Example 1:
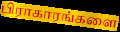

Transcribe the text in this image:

பிராகாரங்களை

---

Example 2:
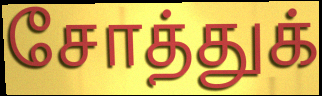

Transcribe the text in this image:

சோத்துக்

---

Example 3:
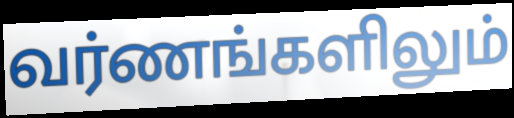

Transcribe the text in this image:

வர்ணங்களிலும்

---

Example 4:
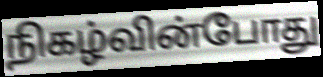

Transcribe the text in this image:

நிகழ்வின்போது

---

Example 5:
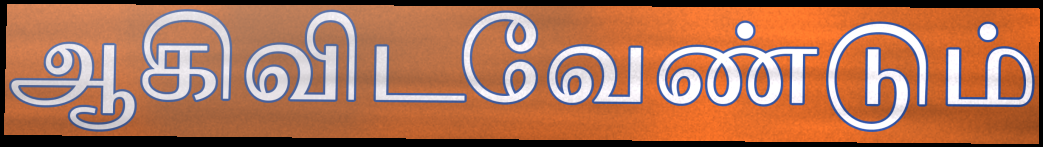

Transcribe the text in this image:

ஆகிவிடவேண்டும்